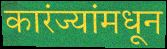
कारंज्यांमधून